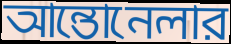
আন্তোনেলার